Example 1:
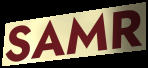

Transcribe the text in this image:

SAMR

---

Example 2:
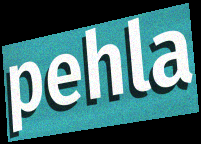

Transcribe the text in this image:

pehla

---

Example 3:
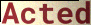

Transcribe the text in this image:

Acted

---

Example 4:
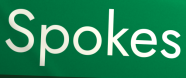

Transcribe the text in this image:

Spokes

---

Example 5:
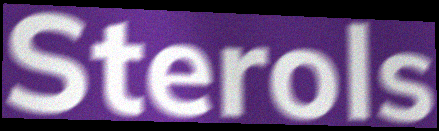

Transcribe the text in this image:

Sterols